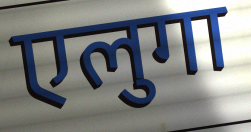
एलुगा